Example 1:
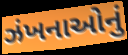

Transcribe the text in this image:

ઝંખનાઓનું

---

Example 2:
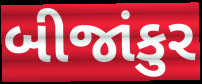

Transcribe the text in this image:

બીજાંકુર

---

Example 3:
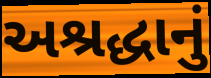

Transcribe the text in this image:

અશ્રદ્ધાનું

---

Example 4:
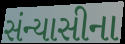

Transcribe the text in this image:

સંન્યાસીના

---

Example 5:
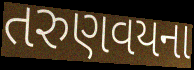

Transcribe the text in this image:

તરુણવયના